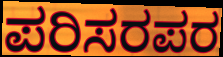
ಪರಿಸರಪರ